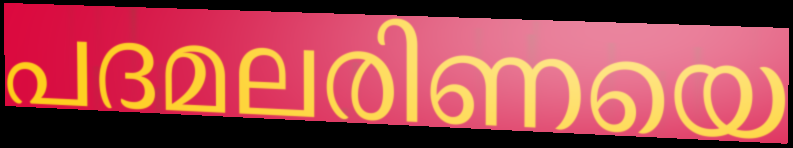
പദമലരിണയെ